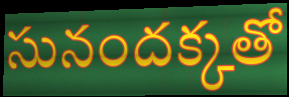
సునందక్కతో